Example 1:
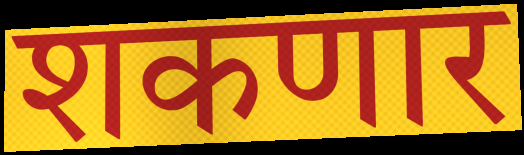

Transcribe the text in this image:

शकणार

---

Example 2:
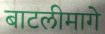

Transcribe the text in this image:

बाटलीमागे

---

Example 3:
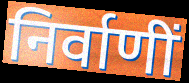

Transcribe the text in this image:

निर्वाणीं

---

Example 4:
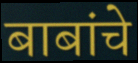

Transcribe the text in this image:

बाबांचे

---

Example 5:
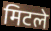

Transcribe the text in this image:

मिटले